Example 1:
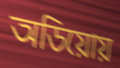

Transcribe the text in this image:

অডিয়োয়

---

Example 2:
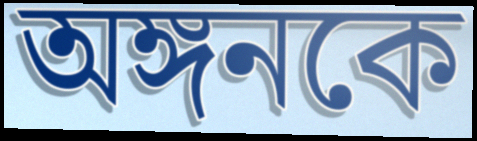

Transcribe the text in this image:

অঙ্গনকে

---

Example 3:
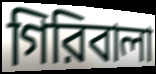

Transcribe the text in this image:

গিরিবালা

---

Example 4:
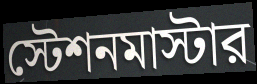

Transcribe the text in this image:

স্টেশনমাস্টার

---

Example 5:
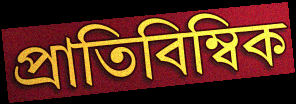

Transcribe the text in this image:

প্রাতিবিম্বিক